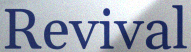
Revival